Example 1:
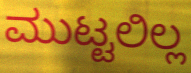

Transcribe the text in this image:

ಮುಟ್ಟಲಿಲ್ಲ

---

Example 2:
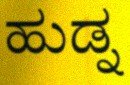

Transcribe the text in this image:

ಹುಡ್ನ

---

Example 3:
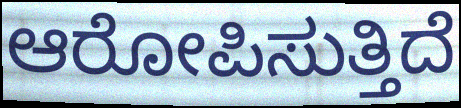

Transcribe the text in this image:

ಆರೋಪಿಸುತ್ತಿದೆ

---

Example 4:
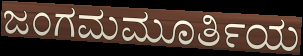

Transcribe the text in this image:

ಜಂಗಮಮೂರ್ತಿಯ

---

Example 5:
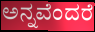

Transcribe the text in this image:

ಅನ್ನವೆಂದರೆ